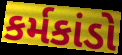
કર્મકાંડો